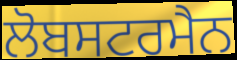
ਲੋਬਸਟਰਮੈਨ